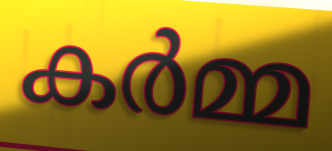
കർമ്മ